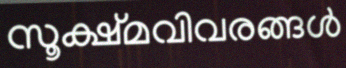
സൂക്ഷ്മവിവരങ്ങൾ